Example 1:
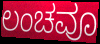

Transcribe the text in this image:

ಲಂಚವೂ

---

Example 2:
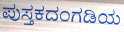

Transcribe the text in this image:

ಪುಸ್ತಕದಂಗಡಿಯ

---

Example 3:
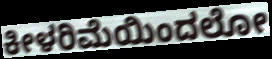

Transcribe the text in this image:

ಕೀಳರಿಮೆಯಿಂದಲೋ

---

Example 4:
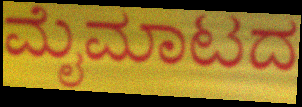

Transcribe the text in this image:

ಮೈಮಾಟದ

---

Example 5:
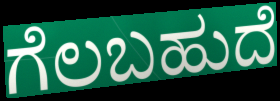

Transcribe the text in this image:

ಗೆಲಬಹುದೆ